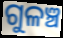
ଗୁଳଞ୍ଚ